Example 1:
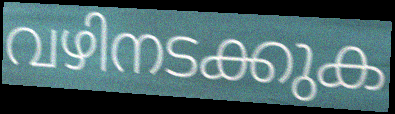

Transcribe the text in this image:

വഴിനടക്കുക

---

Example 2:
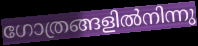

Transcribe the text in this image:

ഗോത്രങ്ങളിൽനിന്നു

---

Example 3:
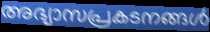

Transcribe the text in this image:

അഭ്യാസപ്രകടനങ്ങൾ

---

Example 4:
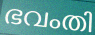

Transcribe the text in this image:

ഭവംതി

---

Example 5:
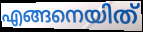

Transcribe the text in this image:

എങ്ങനെയിത്